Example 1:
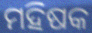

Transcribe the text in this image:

ମହିଷକ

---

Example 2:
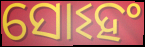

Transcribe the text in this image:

ସୋଽହଂ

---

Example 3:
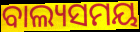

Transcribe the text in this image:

ବାଲ୍ୟସମୟ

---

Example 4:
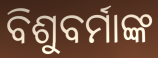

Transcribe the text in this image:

ବିଶୁବର୍ମାଙ୍କ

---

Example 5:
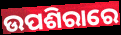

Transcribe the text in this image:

ଉପଶିରାରେ